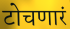
टोचणारं